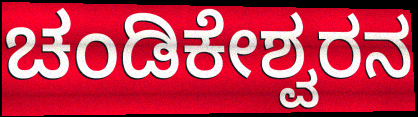
ಚಂಡಿಕೇಶ್ವರನ